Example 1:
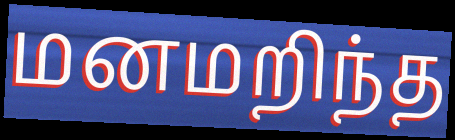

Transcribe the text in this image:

மனமறிந்த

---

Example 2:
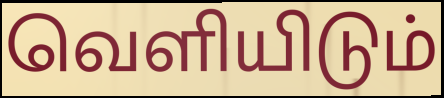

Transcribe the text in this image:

வெளியிடும்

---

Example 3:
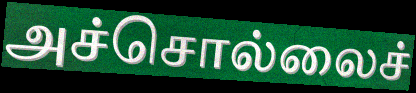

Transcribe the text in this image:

அச்சொல்லைச்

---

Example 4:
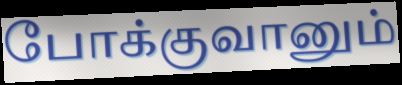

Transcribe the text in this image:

போக்குவானும்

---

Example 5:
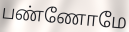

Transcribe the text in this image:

பண்ணோமே